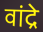
वांद्रे